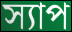
স্যাপ